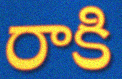
రాకి